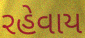
રહેવાય